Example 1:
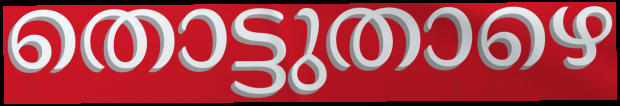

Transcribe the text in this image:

തൊട്ടുതാഴെ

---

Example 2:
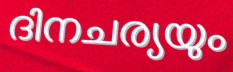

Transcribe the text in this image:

ദിനചര്യയും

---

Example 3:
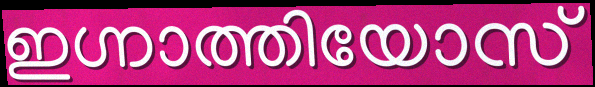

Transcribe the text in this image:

ഇഗ്നാത്തിയോസ്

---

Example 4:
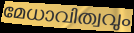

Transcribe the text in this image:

മേധാവിത്വവും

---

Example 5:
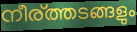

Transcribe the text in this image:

നീര്ത്തടങ്ങളും